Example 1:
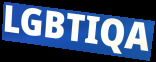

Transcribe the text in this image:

LGBTIQA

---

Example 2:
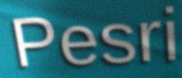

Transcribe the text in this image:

Pesri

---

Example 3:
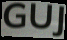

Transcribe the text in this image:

GUJ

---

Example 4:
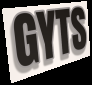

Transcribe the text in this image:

GYTS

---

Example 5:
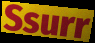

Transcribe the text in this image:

Ssurr